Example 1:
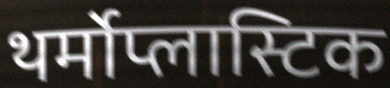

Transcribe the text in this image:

थर्मोप्लास्टिक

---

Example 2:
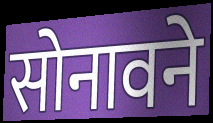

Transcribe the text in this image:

सोनावने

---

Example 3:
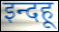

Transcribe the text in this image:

इन्दहू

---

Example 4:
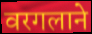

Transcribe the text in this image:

वरगलाने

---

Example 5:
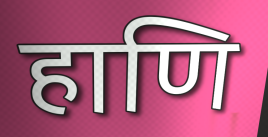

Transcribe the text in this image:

हाणि